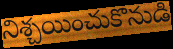
నిశ్చయించుకొనుడి